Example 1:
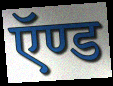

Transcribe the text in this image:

ऍण्ड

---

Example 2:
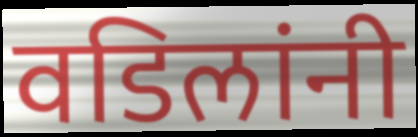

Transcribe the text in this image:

वडिलांनी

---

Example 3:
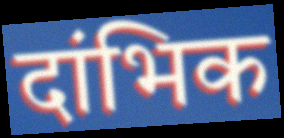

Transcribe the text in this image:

दांभिक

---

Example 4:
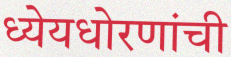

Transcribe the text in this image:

ध्येयधोरणांची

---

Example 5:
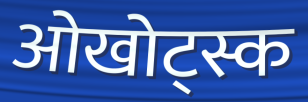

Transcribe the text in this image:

ओखोट्स्क